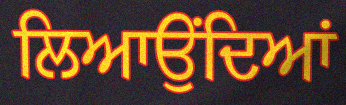
ਲਿਆਉਂਦਿਆਂ